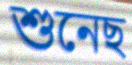
শুনেছ